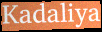
Kadaliya